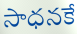
సాధనకే